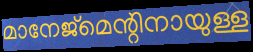
മാനേജ്മെന്റിനായുള്ള